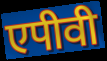
एपीवी